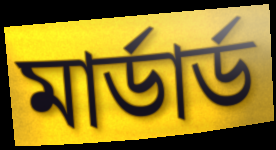
মার্ডার্ড